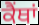
ਕੈਂਥਾਂ